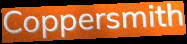
Coppersmith